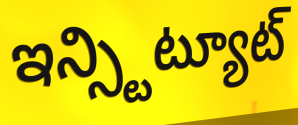
ఇన్స్టిట్యూట్